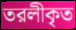
তরলীকৃত